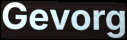
Gevorg